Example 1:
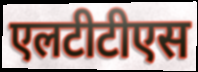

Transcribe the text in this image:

एलटीटीएस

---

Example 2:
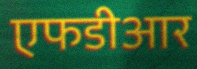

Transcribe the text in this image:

एफडीआर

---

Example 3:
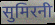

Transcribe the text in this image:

सुमिरनी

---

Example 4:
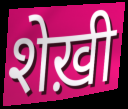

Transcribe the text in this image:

शेख़ी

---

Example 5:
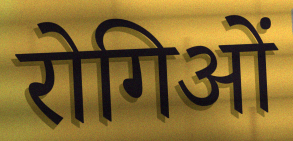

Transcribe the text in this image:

रोगिओं